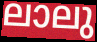
ലാലു